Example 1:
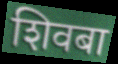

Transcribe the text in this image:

शिवबा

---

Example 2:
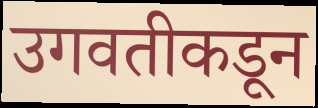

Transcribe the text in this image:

उगवतीकडून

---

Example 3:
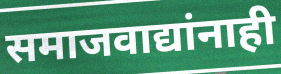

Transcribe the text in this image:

समाजवाद्यांनाही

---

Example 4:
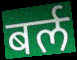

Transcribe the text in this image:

बर्ल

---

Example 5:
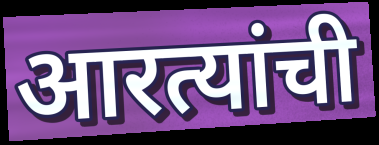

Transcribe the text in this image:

आरत्यांची